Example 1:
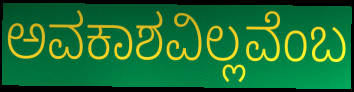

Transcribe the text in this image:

ಅವಕಾಶವಿಲ್ಲವೆಂಬ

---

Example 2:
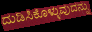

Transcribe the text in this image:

ದುಡಿಸಿಕೊಳ್ಳುವುದನ್ನು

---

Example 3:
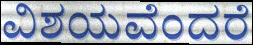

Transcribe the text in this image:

ವಿಶಯವೆಂದರೆ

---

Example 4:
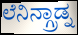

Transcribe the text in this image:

ಲೆನಿನ್ಗ್ರಾಡ್ನ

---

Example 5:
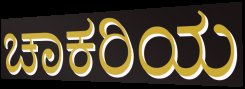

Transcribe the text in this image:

ಚಾಕರಿಯ